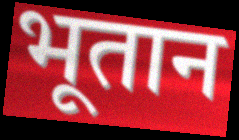
भूतान